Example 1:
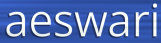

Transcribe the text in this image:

aeswari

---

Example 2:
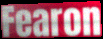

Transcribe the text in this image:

Fearon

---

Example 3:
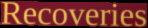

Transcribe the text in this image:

Recoveries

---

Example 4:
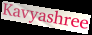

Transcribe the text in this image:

Kavyashree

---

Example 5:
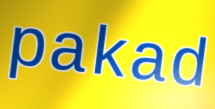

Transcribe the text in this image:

pakad